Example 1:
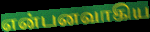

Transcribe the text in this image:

என்பனவாகிய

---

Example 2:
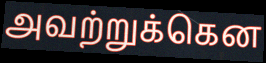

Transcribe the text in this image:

அவற்றுக்கென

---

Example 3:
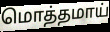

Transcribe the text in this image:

மொத்தமாய்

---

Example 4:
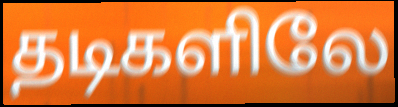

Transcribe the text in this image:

தடிகளிலே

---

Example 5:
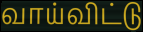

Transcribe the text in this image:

வாய்விட்டு